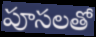
పూసలతో